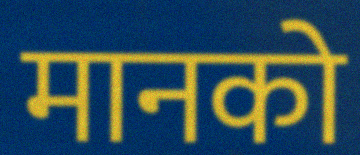
मानको